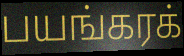
பயங்கரக்